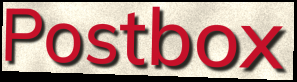
Postbox